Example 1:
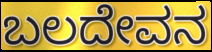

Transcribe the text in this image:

ಬಲದೇವನ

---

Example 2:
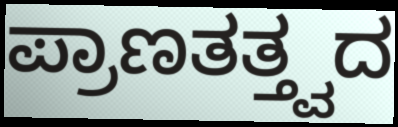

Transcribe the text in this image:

ಪ್ರಾಣತತ್ತ್ವದ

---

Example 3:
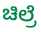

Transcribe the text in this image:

ಚಿಲ್ರೆ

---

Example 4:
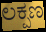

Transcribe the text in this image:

ಲಕ್ಪಣ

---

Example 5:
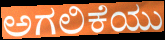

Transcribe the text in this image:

ಅಗಲಿಕೆಯು